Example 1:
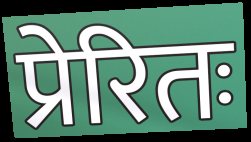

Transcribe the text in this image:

प्रेरितः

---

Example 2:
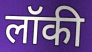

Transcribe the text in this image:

लॉकी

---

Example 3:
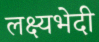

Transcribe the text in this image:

लक्ष्यभेदी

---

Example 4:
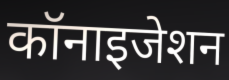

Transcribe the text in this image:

कॉनाइजेशन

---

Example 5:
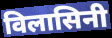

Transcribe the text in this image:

विलासिनी